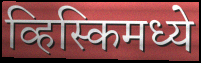
व्हिस्किमध्ये